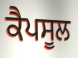
ਕੈਪਸੂਲ